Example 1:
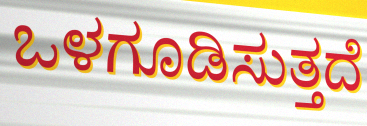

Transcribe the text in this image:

ಒಳಗೂಡಿಸುತ್ತದೆ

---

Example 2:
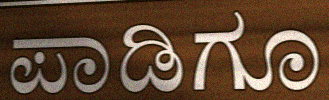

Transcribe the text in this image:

ಪಾಡಿಗೂ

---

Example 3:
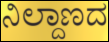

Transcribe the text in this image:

ನಿಲ್ದಾಣದ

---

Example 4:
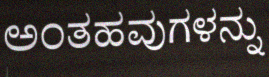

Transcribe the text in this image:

ಅಂತಹವುಗಳನ್ನು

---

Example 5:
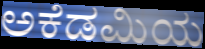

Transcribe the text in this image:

ಅಕೆಡಮಿಯ